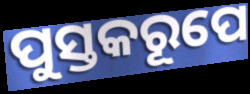
ପୁସ୍ତକରୂପେ